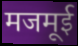
मजमूई